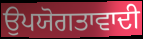
ਉਪਯੋਗਤਾਵਾਦੀ